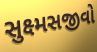
સુક્ષ્મસજીવો